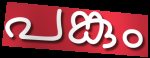
പങ്കും